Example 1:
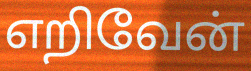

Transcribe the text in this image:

எறிவேன்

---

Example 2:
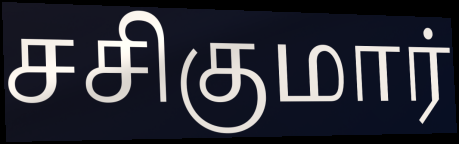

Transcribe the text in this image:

சசிகுமார்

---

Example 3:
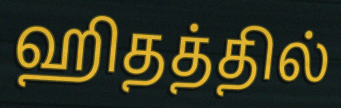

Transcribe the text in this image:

ஹிதத்தில்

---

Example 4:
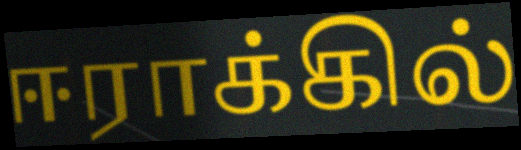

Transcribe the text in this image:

ஈராக்கில்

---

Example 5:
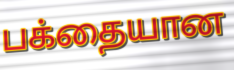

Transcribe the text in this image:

பக்தையான